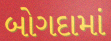
બોગદામાં